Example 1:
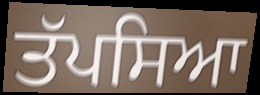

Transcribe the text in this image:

ਤੱਪਸਿਆ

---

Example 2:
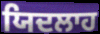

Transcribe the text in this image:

ਯਿਦਲਾਹ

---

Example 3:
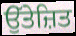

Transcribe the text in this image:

ਉੱਤੇਜ਼ਿਤ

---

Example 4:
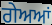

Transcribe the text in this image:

ਗੇਅਆਂ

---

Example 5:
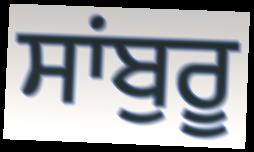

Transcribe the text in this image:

ਸਾਂਬੁਰੂ